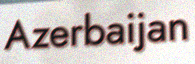
Azerbaijan